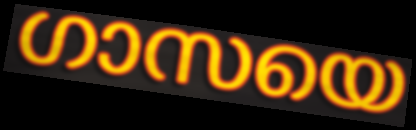
ഗാസയെ